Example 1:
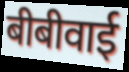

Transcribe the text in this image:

बीबीवाई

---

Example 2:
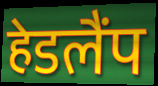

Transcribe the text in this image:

हेडलैंप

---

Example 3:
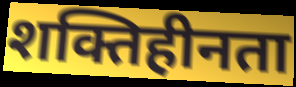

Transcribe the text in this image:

शक्तिहीनता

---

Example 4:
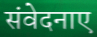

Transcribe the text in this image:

संवेदनाए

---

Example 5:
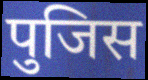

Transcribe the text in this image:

पुजिस